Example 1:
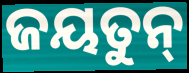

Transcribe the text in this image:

ଜୟତୁନ୍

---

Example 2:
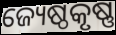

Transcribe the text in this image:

ଜ୍ୟେଷ୍ଠକୃଷ୍ଣ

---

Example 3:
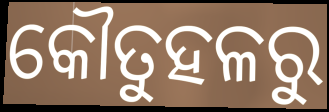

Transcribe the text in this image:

କୌତୁହଳରୁ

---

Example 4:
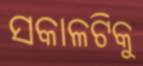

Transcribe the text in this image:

ସକାଳଟିକୁ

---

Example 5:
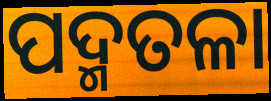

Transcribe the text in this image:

ପଦ୍ମତଳା